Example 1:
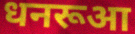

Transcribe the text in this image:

धनरूआ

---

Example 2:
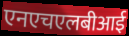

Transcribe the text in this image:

एनएचएलबीआई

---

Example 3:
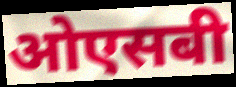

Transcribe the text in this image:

ओएसबी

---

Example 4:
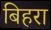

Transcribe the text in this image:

बिहरा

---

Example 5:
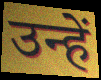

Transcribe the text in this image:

उन्‍हें